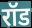
रॉड